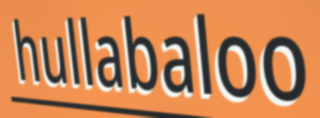
hullabaloo